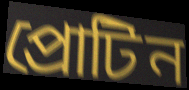
প্রোটিন